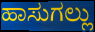
ಹಾಸುಗಲ್ಲು